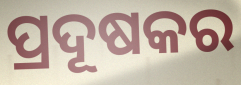
ପ୍ରଦୂଷକର